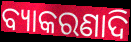
ବ୍ୟାକରଣାଦି